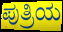
ಪುತ್ರಿಯ